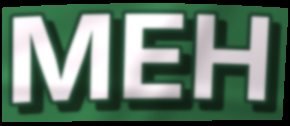
MEH